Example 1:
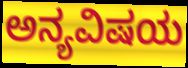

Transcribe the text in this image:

ಅನ್ಯವಿಷಯ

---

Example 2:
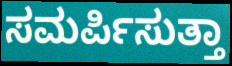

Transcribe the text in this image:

ಸಮರ್ಪಿಸುತ್ತಾ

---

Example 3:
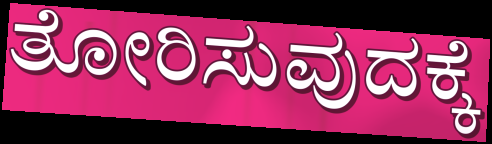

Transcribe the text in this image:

ತೋರಿಸುವುದಕ್ಕೆ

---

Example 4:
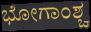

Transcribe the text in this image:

ಭೋಗಾಂಶ್ಚ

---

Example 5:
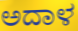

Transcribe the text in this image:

ಅದಾಳ